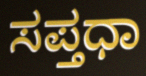
ಸಪ್ತಧಾ